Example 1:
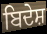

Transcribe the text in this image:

ਬਿਦੇਸ਼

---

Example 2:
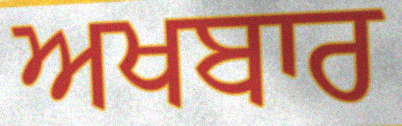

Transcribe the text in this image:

ਅਖਬਾਰ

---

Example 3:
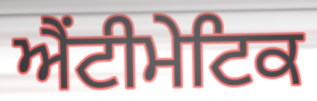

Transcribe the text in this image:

ਐਂਟੀਮੇਟਿਕ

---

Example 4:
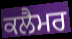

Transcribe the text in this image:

ਕਲੈਮਰ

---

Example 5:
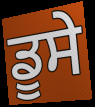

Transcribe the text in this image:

ਡੂਸੇ